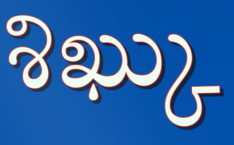
శిఖ్కు